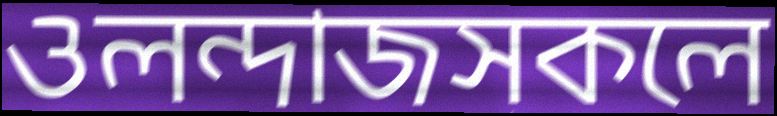
ওলন্দাজসকলে